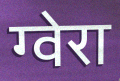
ग्वेरा